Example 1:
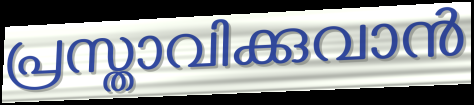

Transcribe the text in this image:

പ്രസ്താവിക്കുവാൻ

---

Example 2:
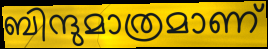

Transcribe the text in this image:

ബിന്ദുമാത്രമാണ്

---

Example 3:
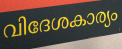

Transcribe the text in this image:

വിദേശകാര്യം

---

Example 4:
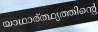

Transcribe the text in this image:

യാഥാര്ത്ഥ്യത്തിന്റെ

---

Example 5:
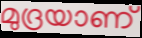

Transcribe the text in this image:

മുദ്രയാണ്